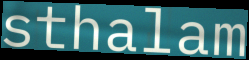
sthalam